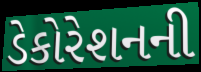
ડેકોરેશનની